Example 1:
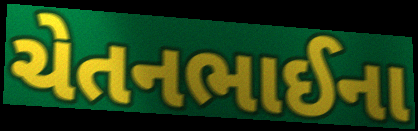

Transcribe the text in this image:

ચેતનભાઈના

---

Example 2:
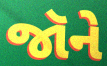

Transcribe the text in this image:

જૉને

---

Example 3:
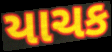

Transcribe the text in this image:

યાચક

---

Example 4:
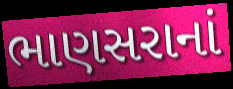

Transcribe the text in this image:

ભાણસરાનાં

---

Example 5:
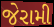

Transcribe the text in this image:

જેરામી